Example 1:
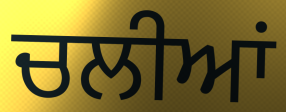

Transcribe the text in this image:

ਚਲੀਆਂ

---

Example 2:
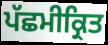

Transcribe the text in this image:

ਪੱਛਮੀਕ੍ਰਿਤ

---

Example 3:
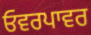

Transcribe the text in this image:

ਓਵਰਪਾਵਰ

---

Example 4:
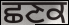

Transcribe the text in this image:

ਛਣਕ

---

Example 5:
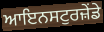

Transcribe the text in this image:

ਆਇਨਸਟੁਰਜ਼ੇਂਡੇ